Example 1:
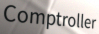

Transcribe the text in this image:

Comptroller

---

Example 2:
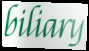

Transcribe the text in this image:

biliary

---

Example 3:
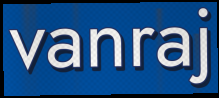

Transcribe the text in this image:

vanraj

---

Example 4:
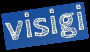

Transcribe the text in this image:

visigi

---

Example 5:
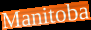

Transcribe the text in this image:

Manitoba